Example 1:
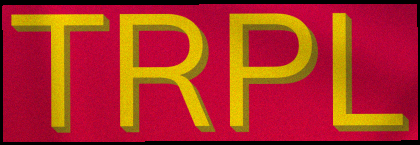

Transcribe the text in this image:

TRPL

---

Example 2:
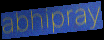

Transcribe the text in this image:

abhipray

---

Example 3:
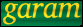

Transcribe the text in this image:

garam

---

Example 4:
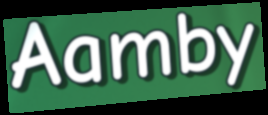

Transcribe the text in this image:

Aamby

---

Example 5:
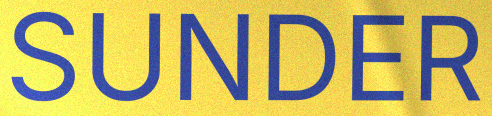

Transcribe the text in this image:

SUNDER